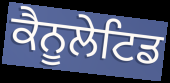
ਕੈਨੂਲੇਟਿਡ